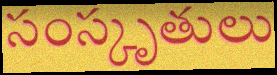
సంస్కృతులు